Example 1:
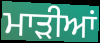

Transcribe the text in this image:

ਮਾੜੀਆਂ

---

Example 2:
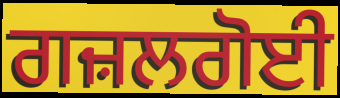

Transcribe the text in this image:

ਗਜ਼ਲਗੋਈ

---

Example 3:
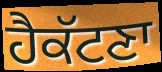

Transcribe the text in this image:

ਹੈਕੱਟਣਾ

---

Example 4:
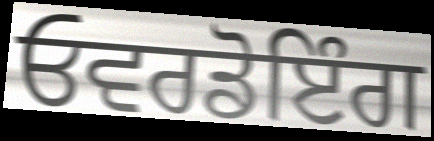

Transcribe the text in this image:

ਓਵਰਡੋਇੰਗ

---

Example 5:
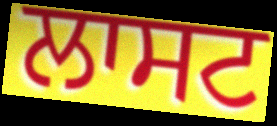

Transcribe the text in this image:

ਲਾਸਟ